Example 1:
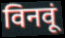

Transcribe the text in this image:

विनवूं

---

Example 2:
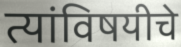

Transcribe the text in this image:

त्यांविषयीचे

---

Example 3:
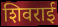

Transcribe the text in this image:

शिवराई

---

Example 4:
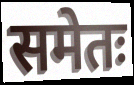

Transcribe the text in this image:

समेतः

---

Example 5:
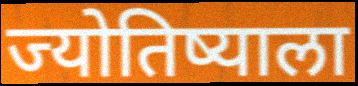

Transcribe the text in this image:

ज्योतिष्याला